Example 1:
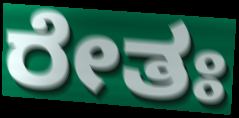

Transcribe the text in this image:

ರೇತಃ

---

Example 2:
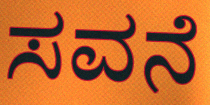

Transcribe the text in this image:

ಸವನೆ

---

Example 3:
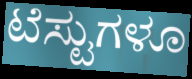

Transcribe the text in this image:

ಟೆಸ್ಟುಗಳೂ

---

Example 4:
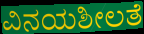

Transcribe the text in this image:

ವಿನಯಶೀಲತೆ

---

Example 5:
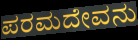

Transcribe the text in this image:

ಪರಮದೇವನು